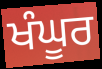
ਖੰਘੂਰ